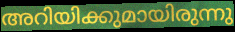
അറിയിക്കുമായിരുന്നു